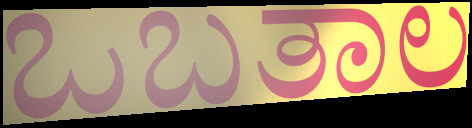
ಒಬತಾಲ